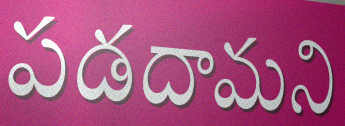
పడదామని